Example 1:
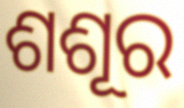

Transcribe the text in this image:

ଶଶୂର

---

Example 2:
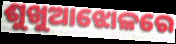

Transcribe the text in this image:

ଶୁଖୁଆଝୋଳରେ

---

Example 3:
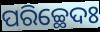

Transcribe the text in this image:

ପରିଚ୍ଛେଦଃ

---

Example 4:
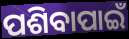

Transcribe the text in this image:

ପଶିବାପାଇଁ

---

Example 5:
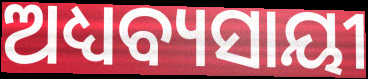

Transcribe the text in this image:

ଅଧ୍ୟବ୍ୟସାୟୀ